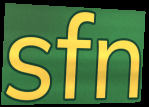
sfn